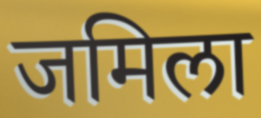
जमिला